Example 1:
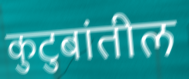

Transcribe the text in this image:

कुटुबांतील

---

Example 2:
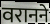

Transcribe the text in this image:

वरानने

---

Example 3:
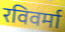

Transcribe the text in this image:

रविवर्मा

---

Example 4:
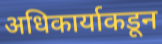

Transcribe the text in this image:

अधिकार्याकडून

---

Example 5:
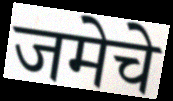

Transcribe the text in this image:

जमेचे